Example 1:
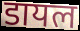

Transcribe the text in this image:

डायल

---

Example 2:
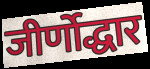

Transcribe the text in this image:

जीर्णोद्धार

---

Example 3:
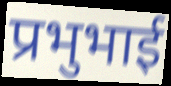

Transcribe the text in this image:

प्रभुभाई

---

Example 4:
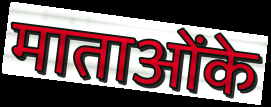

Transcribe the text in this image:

माताओंके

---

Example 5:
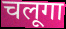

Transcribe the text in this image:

चलूगा